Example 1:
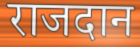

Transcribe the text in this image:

राजदान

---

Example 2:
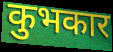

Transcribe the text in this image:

कुभकार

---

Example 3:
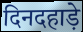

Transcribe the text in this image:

दिनदहाड़े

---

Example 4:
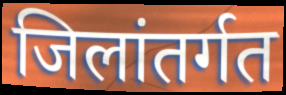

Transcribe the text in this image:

जिलांतर्गत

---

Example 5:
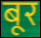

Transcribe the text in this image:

बूर